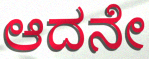
ಆದನೇ